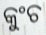
କୁଂଚ